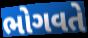
ભોગવતે